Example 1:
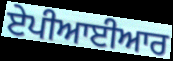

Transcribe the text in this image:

ਏਪੀਆਈਆਰ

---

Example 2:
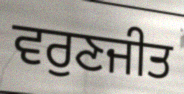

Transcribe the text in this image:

ਵਰੁਣਜੀਤ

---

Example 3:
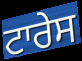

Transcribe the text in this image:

ਟਾਰੇਸ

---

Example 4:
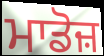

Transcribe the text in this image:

ਮਾਡੋਜ਼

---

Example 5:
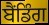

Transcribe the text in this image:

ਬੈਂਡਿੰਗ